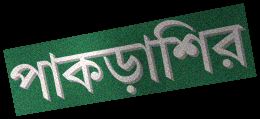
পাকড়াশির